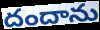
దందాను